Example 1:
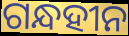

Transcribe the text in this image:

ଗନ୍ଧହୀନ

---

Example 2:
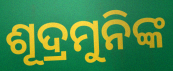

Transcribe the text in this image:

ଶୂଦ୍ରମୁନିଙ୍କ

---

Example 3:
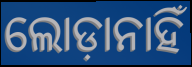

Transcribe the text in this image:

ଲୋଡ଼ାନାହିଁ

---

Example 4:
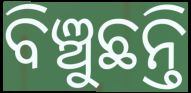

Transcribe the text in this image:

ବିଞ୍ଚୁଛନ୍ତି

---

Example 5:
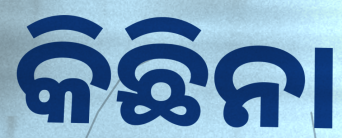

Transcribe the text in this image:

କିଛିନା